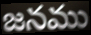
జనము